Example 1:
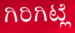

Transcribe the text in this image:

ಗಿರಿಗಿಟ್ಲೆ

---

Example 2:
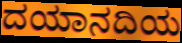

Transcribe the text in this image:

ದಯಾನದಿಯ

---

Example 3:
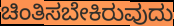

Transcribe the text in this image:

ಚಿಂತಿಸಬೇಕಿರುವುದು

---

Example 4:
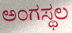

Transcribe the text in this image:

ಅಂಗಸ್ಥಲ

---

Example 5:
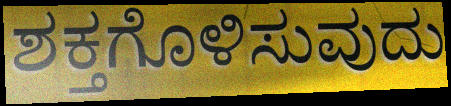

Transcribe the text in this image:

ಶಕ್ತಗೊಳಿಸುವುದು